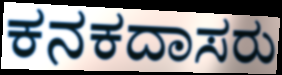
ಕನಕದಾಸರು